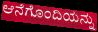
ಆನೆಗೊಂದಿಯನ್ನು